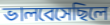
ভালবেসেছিলে